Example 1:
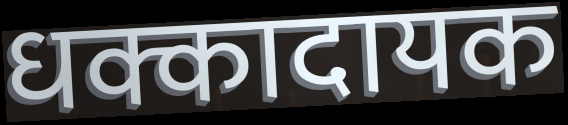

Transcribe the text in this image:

धक्कादायक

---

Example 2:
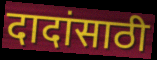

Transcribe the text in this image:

दादांसाठी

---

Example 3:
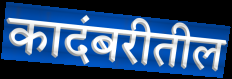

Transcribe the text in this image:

कादंबरीतील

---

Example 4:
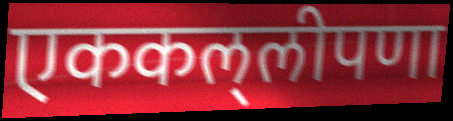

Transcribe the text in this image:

एककल्लीपणा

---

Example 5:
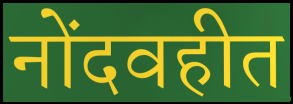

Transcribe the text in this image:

नोंदवहीत